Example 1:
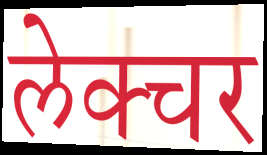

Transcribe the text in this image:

लेक्चर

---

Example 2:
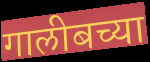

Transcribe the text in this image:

गालीबच्या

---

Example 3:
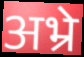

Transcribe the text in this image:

अभ्रे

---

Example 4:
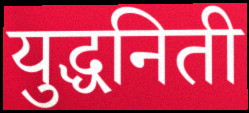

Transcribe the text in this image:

युद्धनिती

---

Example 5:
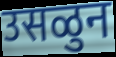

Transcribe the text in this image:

उसळुन